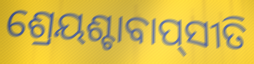
ଶ୍ରେୟଶ୍ଚାବାପ୍‌ସୀତି